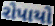
રોપાયો